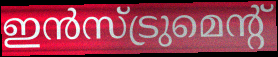
ഇൻസ്ട്രുമെന്റ്